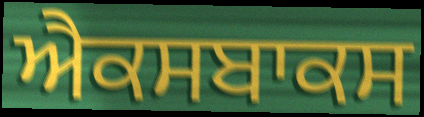
ਐਕਸਬਾਕਸ